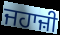
ਜਹਾਜ਼ੀ